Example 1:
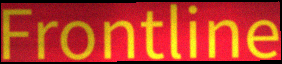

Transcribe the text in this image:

Frontline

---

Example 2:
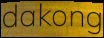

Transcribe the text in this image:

dakong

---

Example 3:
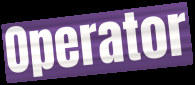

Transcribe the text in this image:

Operator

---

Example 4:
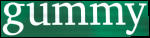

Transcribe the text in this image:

gummy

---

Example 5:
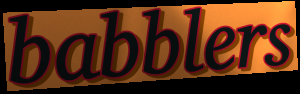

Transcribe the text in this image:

babblers